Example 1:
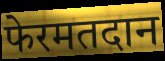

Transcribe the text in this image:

फेरमतदान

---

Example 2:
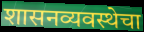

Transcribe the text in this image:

शासनव्यवस्थेचा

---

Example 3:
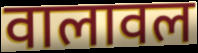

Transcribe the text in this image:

वालावल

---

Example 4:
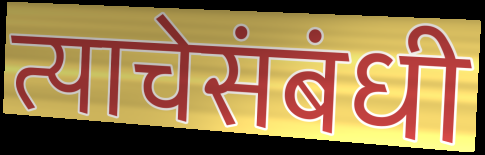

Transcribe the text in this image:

त्याचेसंबंधी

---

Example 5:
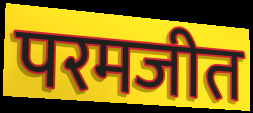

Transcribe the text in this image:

परमजीत